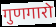
गुणगारो